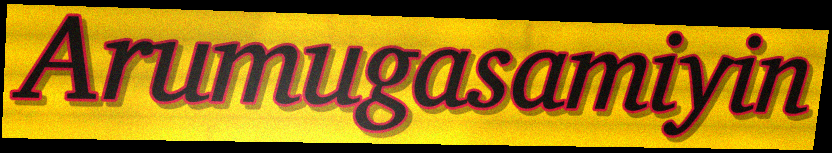
Arumugasamiyin